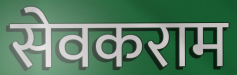
सेवकराम